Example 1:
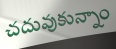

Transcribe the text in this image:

చదువుకున్నాం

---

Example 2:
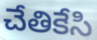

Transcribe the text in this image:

చేతికేసి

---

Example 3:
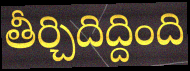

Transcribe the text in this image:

తీర్చిదిద్దింది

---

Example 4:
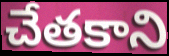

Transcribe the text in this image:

చేతకాని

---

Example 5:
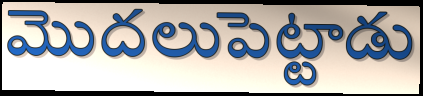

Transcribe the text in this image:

మొదలుపెట్టాడు